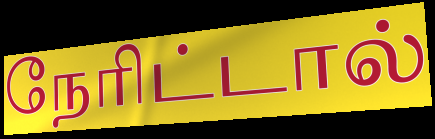
நேரிட்டால்